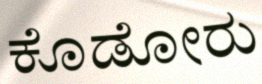
ಕೊಡೋರು